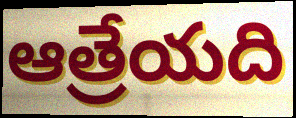
ఆత్రేయది